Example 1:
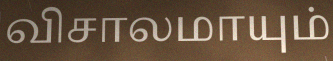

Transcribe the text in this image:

விசாலமாயும்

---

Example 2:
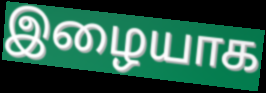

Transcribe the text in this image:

இழையாக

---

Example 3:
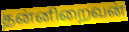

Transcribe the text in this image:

தன்னிறைவன்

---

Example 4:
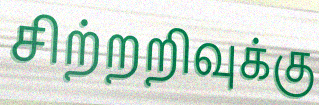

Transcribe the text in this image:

சிற்றறிவுக்கு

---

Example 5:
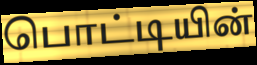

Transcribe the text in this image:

பொட்டியின்